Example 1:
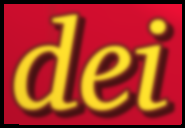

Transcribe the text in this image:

dei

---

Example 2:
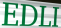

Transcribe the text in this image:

EDLI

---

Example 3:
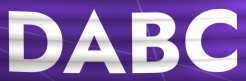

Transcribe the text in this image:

DABC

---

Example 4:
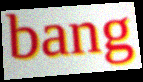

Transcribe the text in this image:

bang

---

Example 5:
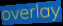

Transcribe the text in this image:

overlay